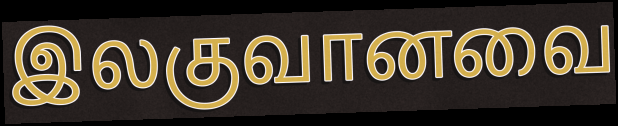
இலகுவானவை